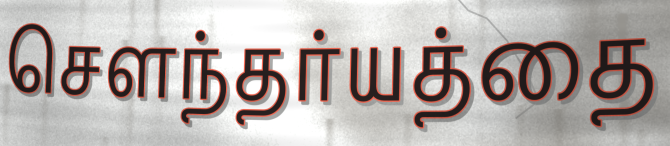
செளந்தர்யத்தை